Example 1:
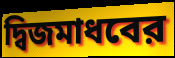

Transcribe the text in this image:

দ্বিজমাধবের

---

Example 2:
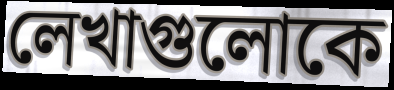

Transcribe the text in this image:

লেখাগুলোকে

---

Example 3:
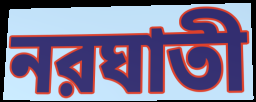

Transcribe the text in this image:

নরঘাতী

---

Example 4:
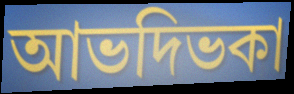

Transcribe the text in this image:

আভদিভকা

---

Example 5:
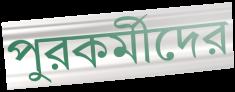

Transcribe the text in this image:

পুরকর্মীদের